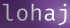
lohaj